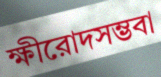
ক্ষীরোদসম্ভবা